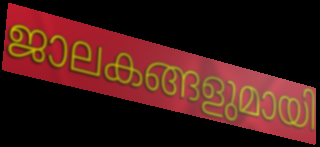
ജാലകങ്ങളുമായി